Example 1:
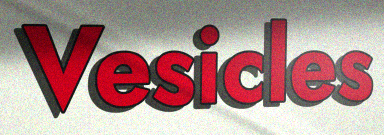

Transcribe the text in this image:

Vesicles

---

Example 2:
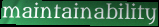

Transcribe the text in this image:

maintainability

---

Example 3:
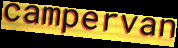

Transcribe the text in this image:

campervan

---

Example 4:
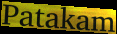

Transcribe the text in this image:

Patakam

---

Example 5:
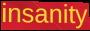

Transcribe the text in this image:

insanity